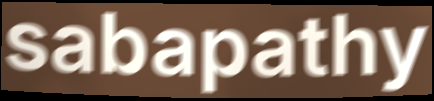
sabapathy